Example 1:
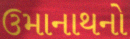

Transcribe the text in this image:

ઉમાનાથનો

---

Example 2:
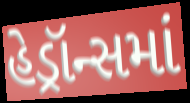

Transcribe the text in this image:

હેડ્રૉન્સમાં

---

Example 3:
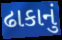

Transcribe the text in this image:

ઢાકાનું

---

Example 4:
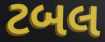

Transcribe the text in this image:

ટબલ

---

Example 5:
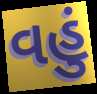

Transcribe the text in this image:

વહું